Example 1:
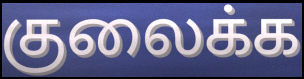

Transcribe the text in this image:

குலைக்க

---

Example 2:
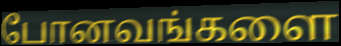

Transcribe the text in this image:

போனவங்களை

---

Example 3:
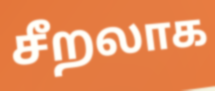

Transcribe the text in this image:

சீறலாக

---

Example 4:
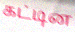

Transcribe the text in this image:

கட்டின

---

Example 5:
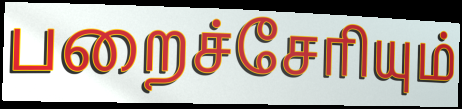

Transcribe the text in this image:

பறைச்சேரியும்